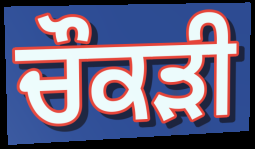
ਚੌਕੜੀ